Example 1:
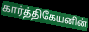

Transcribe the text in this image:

கார்த்திகேயனின்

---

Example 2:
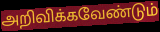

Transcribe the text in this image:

அறிவிக்கவேண்டும்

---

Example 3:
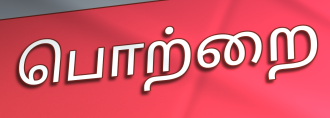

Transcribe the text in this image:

பொற்றை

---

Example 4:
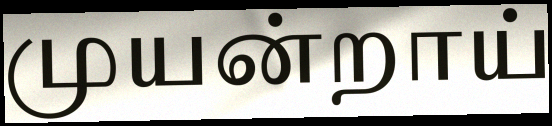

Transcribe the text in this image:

முயன்றாய்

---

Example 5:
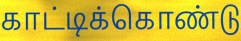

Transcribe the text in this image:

காட்டிக்கொண்டு